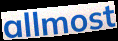
allmost